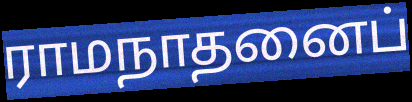
ராமநாதனைப்